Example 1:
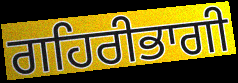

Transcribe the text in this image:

ਗਹਿਰੀਭਾਗੀ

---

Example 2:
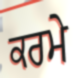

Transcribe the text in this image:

ਕਰਮੇ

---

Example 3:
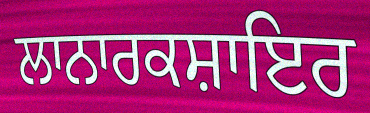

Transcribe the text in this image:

ਲਾਨਾਰਕਸ਼ਾਇਰ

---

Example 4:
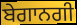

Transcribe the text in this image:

ਬੇਗਾਨਗੀ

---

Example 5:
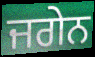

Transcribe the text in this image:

ਜਗੇਨ